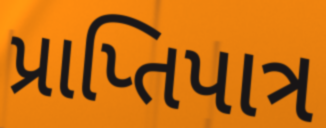
પ્રાપ્તિપાત્ર